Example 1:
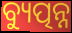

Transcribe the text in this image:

ବ୍ୟୁତ୍ପନ୍ନ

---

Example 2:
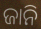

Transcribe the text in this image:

ଜାନି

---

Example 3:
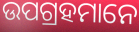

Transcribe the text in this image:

ଉପଗ୍ରହମାନେ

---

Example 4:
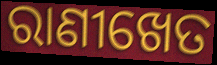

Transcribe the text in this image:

ରାଣୀଖେତ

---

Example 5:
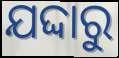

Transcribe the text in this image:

ଯଦ୍ଦାରୁ